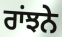
ਰਾਂਝਨੇ